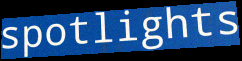
spotlights